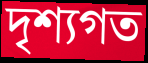
দৃশ্যগত